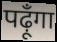
पढ़ूँगा